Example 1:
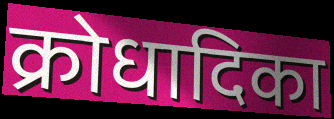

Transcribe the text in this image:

क्रोधादिका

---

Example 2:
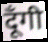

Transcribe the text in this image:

दूँगी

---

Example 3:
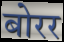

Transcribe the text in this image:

बोरर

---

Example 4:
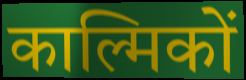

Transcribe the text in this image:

काल्मिकों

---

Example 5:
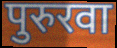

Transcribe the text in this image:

पुरुरवा